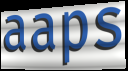
aaps